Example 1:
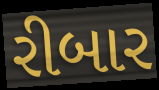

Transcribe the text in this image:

રીબાર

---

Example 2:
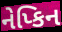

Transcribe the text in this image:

નેપ્કિન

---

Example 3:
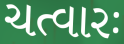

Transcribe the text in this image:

ચત્વારઃ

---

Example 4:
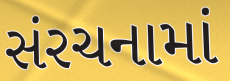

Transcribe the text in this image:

સંરચનામાં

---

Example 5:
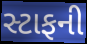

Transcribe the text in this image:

સ્ટાફની